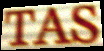
TAS